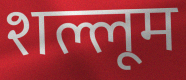
शल्लूम